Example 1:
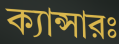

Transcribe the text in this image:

ক্যান্সারঃ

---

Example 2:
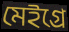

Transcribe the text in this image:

মেইগ্রে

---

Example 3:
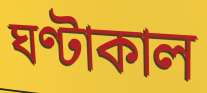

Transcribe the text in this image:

ঘণ্টাকাল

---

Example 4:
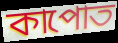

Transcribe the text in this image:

কাপোত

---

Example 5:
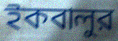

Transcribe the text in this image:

ইকবালুর